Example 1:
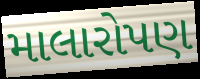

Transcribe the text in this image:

માલારોપણ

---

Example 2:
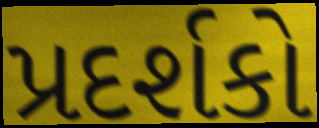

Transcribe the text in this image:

પ્રદર્શકો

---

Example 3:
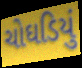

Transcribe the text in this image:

ચોઘડિયું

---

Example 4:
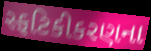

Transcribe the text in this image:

સ્ફટિકીકરણના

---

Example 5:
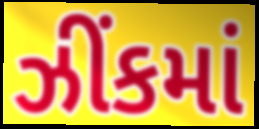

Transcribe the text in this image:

ઝીંકમાં